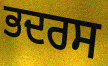
ਭਦਰਸ